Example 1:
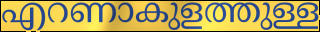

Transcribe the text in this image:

എറണാകുളത്തുള്ള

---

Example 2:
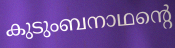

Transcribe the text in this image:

കുടുംബനാഥന്റെ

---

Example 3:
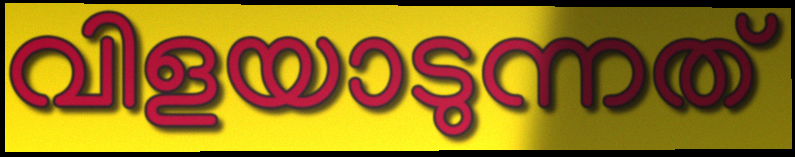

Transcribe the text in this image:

വിളയാടുന്നത്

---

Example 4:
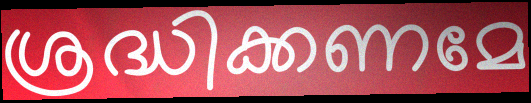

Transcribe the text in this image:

ശ്രദ്ധിക്കണമേ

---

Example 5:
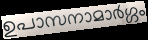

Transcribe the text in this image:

ഉപാസനാമാർഗ്ഗം